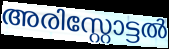
അരിസ്റ്റോട്ടൽ